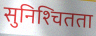
सुनिश्चितता